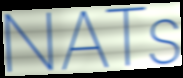
NATs